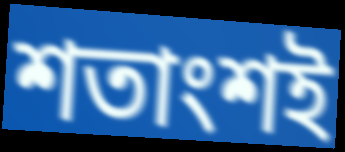
শতাংশই